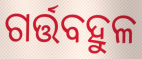
ଗର୍ତ୍ତବହୁଳ